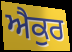
ਐਕੁਰ